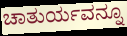
ಚಾತುರ್ಯವನ್ನೂ